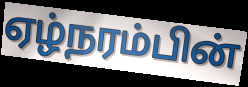
ஏழ்நரம்பின்